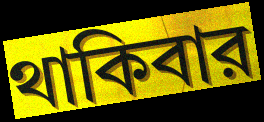
থাকিবার